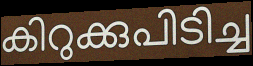
കിറുക്കുപിടിച്ച